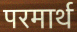
परमार्थ